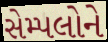
સેમ્પલોને